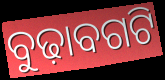
ବୁଢ଼ାବଗଟି